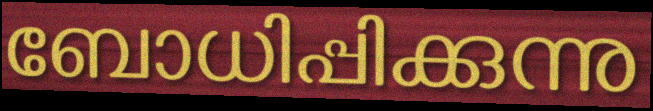
ബോധിപ്പിക്കുന്നു